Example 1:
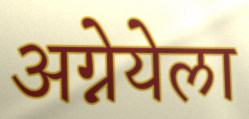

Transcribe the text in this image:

अग्नेयेला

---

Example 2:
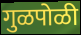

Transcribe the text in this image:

गुळपोळी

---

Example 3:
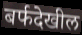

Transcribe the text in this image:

बर्फदेखील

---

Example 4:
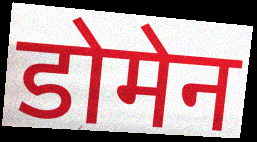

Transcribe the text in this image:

डोमेन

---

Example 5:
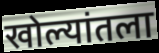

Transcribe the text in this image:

खोल्यांतला